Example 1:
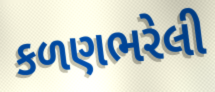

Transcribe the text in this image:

કળણભરેલી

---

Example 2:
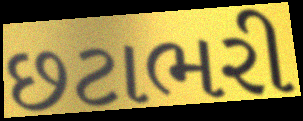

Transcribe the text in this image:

છટાભરી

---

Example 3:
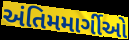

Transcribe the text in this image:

અંતિમમાર્ગીઓ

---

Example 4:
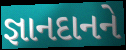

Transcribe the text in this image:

જ્ઞાનદાનને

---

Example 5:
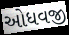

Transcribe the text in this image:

ઓધવજી